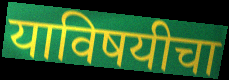
याविषयीचा